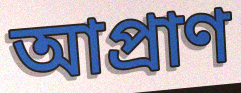
আপ্ৰাণ